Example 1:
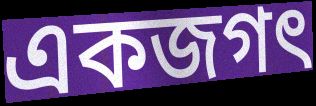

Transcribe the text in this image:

একজগৎ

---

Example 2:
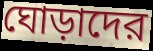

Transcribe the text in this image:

ঘোড়াদের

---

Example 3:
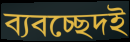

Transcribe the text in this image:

ব্যবচ্ছেদই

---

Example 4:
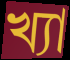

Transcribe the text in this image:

খ্যা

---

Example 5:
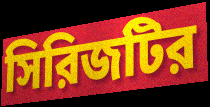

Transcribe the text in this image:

সিরিজটির